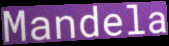
Mandela